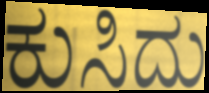
ಕುಸಿದು